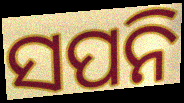
ସପନି